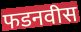
फडनवीस